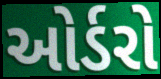
ઓર્ડરો